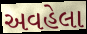
અવહેલા